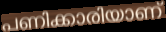
പണിക്കാരിയാണ്